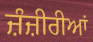
ਜ਼ੰਜ਼ੀਰੀਆਂ